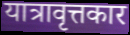
यात्रावृत्तकार